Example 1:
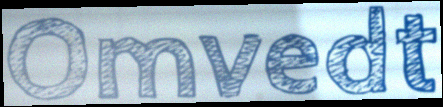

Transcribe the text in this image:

Omvedt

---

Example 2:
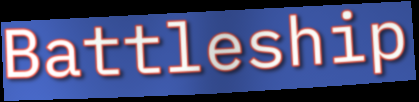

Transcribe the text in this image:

Battleship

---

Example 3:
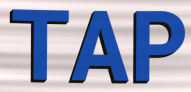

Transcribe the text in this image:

TAP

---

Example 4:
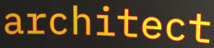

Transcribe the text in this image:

architect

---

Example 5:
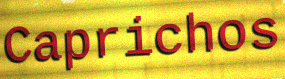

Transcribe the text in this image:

Caprichos